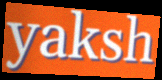
yaksh